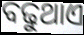
ବଢୁଥାଏ